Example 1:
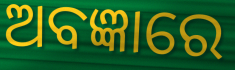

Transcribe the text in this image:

ଅବଜ୍ଞାରେ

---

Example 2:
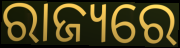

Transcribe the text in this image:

ରାଜ୍ଯରେ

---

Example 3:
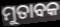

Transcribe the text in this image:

ମୁତାବକ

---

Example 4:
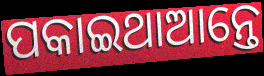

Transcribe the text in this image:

ପକାଇଥାଆନ୍ତେ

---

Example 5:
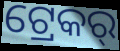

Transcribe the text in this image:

ଟ୍ରେକର୍